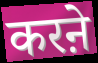
करऩे